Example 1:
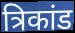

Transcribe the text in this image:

त्रिकांड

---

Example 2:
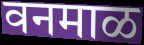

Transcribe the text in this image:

वनमाळ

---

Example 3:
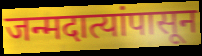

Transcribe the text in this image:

जन्मदात्यांपासून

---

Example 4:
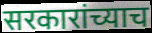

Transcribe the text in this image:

सरकारांच्याच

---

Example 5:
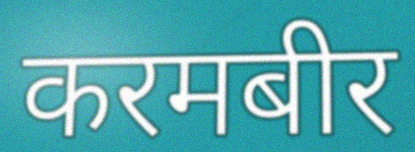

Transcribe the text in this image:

करमबीर